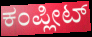
ಕಂಪ್ಲೀಟ್